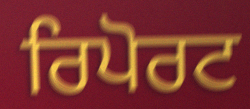
ਰਿਪੋਰਟ